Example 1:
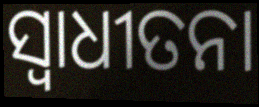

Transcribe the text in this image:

ସ୍ବାଧୀତନା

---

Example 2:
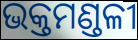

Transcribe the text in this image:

ଭକ୍ତମଣ୍ଡଳୀ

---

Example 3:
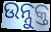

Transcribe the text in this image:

ଉନ୍ନୁକ୍ତ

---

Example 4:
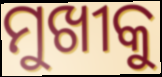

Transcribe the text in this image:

ମୁଖୀକୁ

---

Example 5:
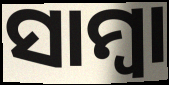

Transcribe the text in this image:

ସାମ୍ବା